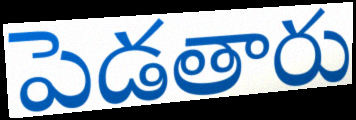
పెడతారు